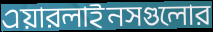
এয়ারলাইনসগুলোর